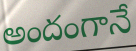
అందంగానే